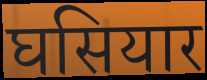
घसियार